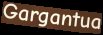
Gargantua